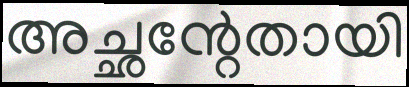
അച്ഛന്റേതായി